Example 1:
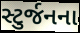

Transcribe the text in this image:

સ્ટુર્જનના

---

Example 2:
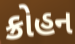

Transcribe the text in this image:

ક્રોહન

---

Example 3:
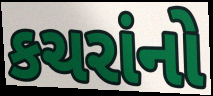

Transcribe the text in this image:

કચરાંનો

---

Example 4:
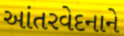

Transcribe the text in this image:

આંતરવેદનાને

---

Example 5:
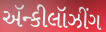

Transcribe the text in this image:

ઍન્કીલૉઝીંગ